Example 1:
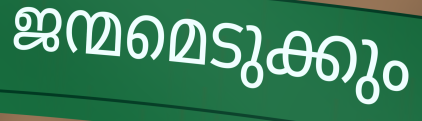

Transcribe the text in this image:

ജന്മമെടുക്കും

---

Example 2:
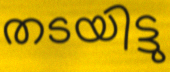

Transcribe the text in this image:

തടയിട്ടു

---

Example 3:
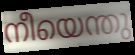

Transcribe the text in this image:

നീയെന്തു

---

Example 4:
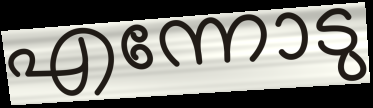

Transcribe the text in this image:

എന്നോടു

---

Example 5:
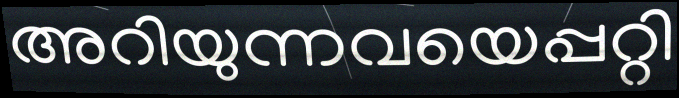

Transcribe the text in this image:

അറിയുന്നവയെപ്പറ്റി